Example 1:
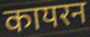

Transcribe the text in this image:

कायरन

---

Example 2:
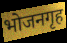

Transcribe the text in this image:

भोजनगृह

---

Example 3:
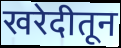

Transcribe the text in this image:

खरेदीतून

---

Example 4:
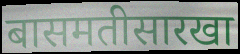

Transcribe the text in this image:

बासमतीसारखा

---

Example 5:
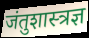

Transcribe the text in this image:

जंतुशास्त्रज्ञ